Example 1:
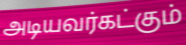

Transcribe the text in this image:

அடியவர்கட்கும்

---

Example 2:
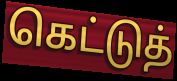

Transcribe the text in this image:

கெட்டுத்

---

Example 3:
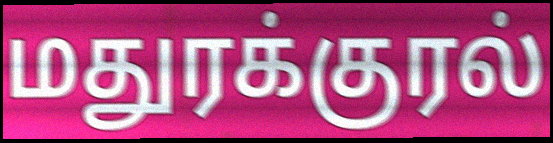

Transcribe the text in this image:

மதுரக்குரல்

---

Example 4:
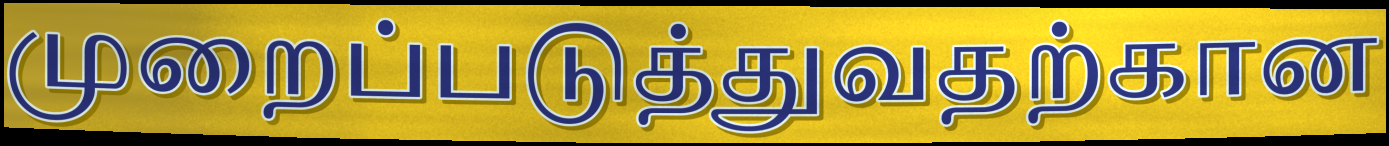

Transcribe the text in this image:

முறைப்படுத்துவதற்கான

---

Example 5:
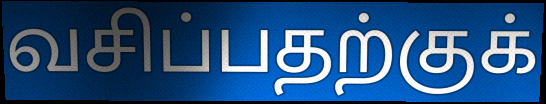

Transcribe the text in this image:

வசிப்பதற்குக்